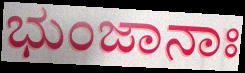
ಭುಂಜಾನಾಃ